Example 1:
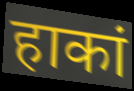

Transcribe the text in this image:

हाकां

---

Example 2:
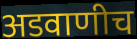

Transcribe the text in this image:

अडवाणीच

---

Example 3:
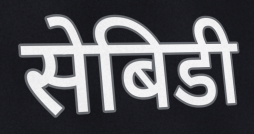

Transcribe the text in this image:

सेबिडी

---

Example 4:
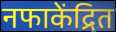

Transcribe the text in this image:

नफाकेंद्रित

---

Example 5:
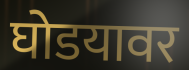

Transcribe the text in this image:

घोडयावर